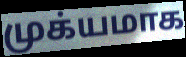
முக்யமாக